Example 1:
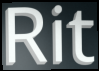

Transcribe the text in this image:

Rit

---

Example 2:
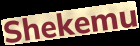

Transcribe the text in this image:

Shekemu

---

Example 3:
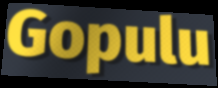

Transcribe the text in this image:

Gopulu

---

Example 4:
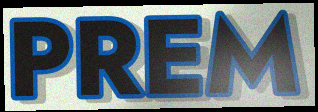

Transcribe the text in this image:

PREM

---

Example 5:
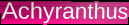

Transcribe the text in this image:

Achyranthus